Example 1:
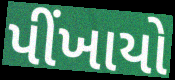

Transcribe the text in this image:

પીંખાયો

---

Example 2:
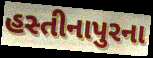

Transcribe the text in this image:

હસ્તીનાપુરના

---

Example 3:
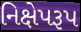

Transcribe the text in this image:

નિક્ષેપરૂપ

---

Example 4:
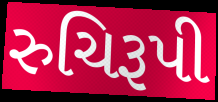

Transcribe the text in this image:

રુચિરૂપી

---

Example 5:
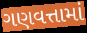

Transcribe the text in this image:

ગણવત્તામાં